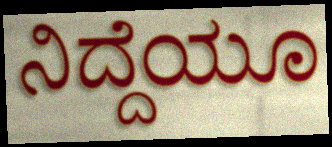
ನಿದ್ದೆಯೂ